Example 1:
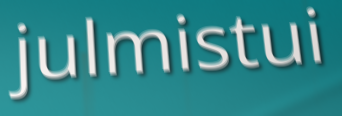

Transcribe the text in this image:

julmistui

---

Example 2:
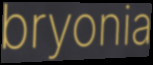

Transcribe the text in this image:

bryonia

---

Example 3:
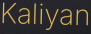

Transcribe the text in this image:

Kaliyan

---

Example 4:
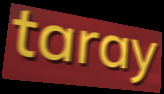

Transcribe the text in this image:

taray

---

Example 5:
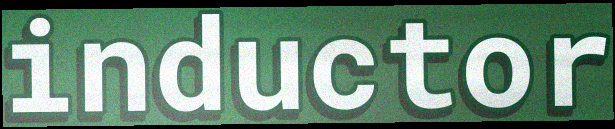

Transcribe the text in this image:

inductor